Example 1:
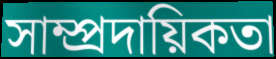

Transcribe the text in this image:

সাম্প্ৰদায়িকতা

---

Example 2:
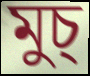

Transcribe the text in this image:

মুচ্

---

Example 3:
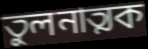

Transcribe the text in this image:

তুলনাত্মক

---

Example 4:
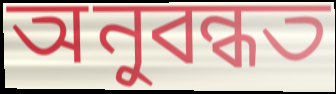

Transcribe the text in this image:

অনুবন্ধত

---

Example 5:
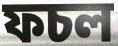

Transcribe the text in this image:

ফচল